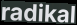
radikal